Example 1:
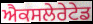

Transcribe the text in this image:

ਐਕਸਲੇਰੇਟੇਡ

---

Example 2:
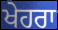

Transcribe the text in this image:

ਖੇਹਰਾ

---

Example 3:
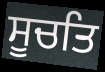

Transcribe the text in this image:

ਸੂਚਤਿ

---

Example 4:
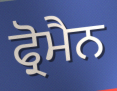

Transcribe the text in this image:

ਫ੍ਰੋਮੈਨ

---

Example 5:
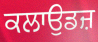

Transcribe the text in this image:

ਕਲਾਉਡਜ਼